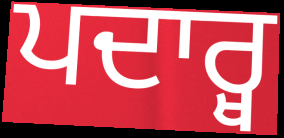
ਪਦਾਰ੍ਥ